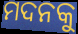
ମଦନକୁ